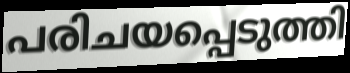
പരിചയപ്പെടുത്തി